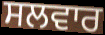
ਸਲਵਾਰ